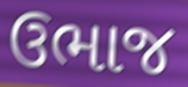
ઉભાજ